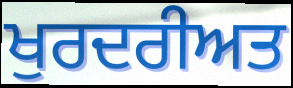
ਖੁਰਦਰੀਅਤ